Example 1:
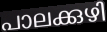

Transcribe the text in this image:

പാലക്കുഴി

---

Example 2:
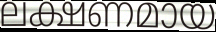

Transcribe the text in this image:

ലക്ഷണമായ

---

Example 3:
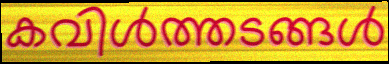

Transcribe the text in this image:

കവിൾത്തടങ്ങൾ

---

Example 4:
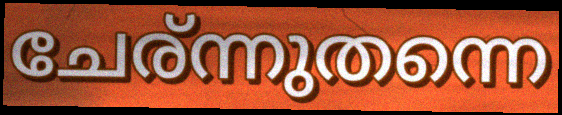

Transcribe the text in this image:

ചേര്ന്നുതന്നെ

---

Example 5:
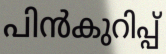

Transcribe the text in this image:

പിൻകുറിപ്പ്